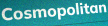
Cosmopolitan